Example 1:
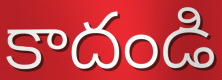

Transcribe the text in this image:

కాదండి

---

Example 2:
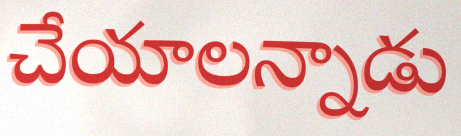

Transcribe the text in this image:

చేయాలన్నాడు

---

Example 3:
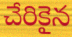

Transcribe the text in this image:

చేరికైన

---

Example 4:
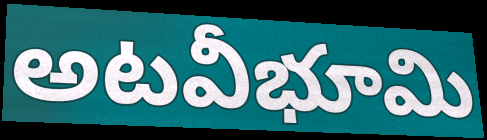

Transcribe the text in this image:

అటవీభూమి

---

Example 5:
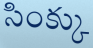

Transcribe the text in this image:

సింక్కు